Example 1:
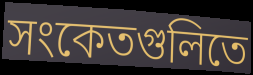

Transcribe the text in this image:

সংকেতগুলিতে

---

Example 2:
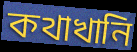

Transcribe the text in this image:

কথাখানি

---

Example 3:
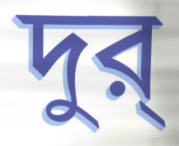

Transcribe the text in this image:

দুর্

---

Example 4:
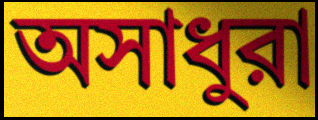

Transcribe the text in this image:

অসাধুরা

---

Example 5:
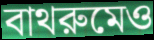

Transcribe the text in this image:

বাথরুমেও